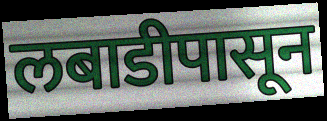
लबाडीपासून